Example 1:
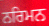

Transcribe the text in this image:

ਨਰਿਮਨ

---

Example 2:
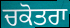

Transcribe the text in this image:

ਚਕੋਤਰਾ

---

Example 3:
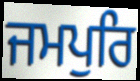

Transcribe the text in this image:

ਜਮਪੁਰਿ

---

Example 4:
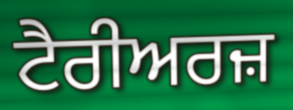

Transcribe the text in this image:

ਟੈਰੀਅਰਜ਼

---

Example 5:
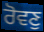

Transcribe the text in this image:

ਰੋਵਣੁ